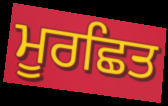
ਮੂਰਛਿਤ